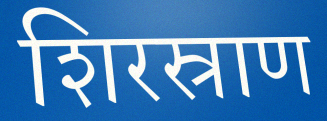
शिरस्राण